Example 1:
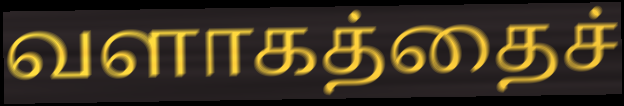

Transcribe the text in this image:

வளாகத்தைச்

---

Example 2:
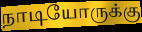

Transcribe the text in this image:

நாடியோருக்கு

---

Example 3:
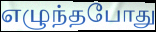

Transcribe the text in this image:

எழுந்தபோது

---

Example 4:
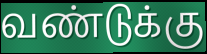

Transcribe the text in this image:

வண்டுக்கு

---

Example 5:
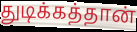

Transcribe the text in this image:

துடிக்கத்தான்